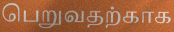
பெறுவதற்காக